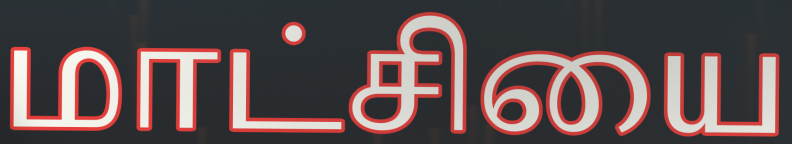
மாட்சியை